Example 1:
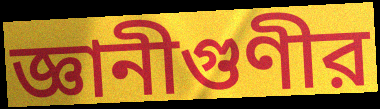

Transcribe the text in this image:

জ্ঞানীগুণীর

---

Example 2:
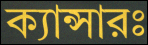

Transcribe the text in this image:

ক্যান্সারঃ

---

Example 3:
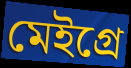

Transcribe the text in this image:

মেইগ্রে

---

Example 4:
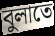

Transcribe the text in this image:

বুলাতে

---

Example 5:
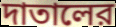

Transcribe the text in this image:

দাতালের